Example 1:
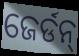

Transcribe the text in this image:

ଜେର୍ଡନ୍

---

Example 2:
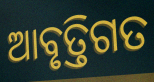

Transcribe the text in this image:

ଆବୃତ୍ତିଗତ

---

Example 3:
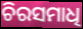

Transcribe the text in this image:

ଚିରସମାଧି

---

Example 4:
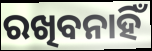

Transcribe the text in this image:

ରଖିବନାହିଁ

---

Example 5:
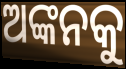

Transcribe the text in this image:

ଅଙ୍କନକୁ